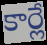
కార్లే